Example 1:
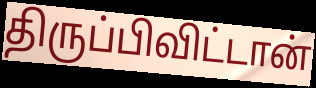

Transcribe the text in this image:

திருப்பிவிட்டான்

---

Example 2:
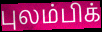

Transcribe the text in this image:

புலம்பிக்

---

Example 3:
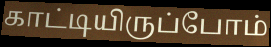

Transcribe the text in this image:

காட்டியிருப்போம்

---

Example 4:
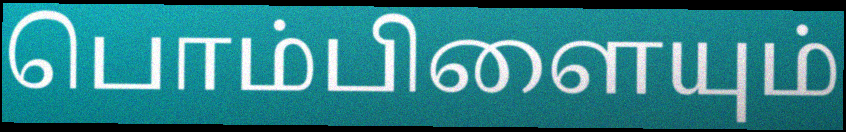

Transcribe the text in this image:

பொம்பிளையும்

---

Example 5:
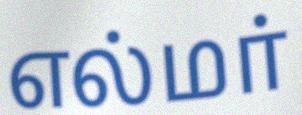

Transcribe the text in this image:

எல்மர்